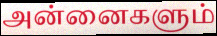
அன்னைகளும்